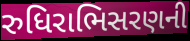
રુધિરાભિસરણની